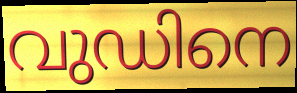
വുഡിനെ